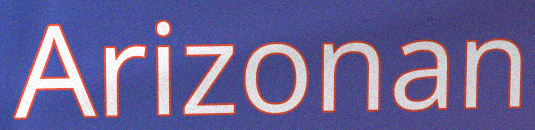
Arizonan